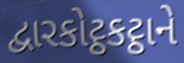
દ્વારકોટ્ઠકટ્ઠાને